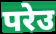
परेउ